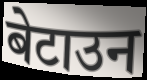
बेटाउन